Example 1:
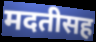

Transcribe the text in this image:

मदतीसह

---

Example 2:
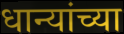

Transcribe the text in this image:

धान्यांच्या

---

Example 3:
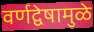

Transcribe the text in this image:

वर्णद्वेषामुळे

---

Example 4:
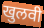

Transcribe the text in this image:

खुलवी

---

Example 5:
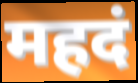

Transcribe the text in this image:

महदं